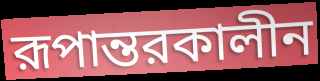
রূপান্তরকালীন